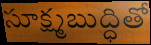
సూక్ష్మబుద్ధితో